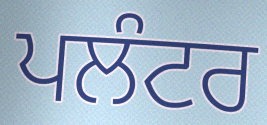
ਪਲੰਟਰ